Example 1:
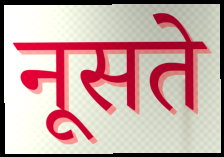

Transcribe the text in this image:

नूसते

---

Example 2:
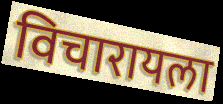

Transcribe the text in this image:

विचारायला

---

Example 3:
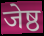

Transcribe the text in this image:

जेष्ठ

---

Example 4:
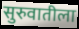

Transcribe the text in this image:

सुरुवातीला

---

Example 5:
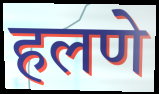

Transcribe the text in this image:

हलणे